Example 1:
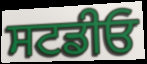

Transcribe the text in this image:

ਸਟਡੀਓ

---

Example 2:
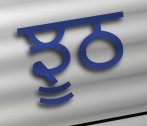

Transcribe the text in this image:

ਝੂਠ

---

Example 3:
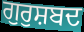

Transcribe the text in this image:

ਗੁਰੁਸ਼ਬਦ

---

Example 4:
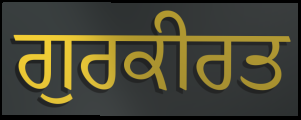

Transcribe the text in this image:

ਗੁਰਕੀਰਤ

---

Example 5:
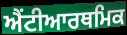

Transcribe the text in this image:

ਐਂਟੀਆਰਥਮਿਕ